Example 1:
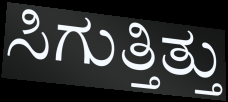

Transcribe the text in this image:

ಸಿಗುತ್ತಿತ್ತು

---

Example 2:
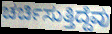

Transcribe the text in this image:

ಚರ್ಚಿಸುತ್ತಿದ್ದೆವು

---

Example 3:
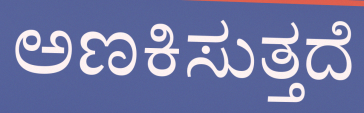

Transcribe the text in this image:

ಅಣಕಿಸುತ್ತದೆ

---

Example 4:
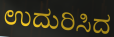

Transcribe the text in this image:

ಉದುರಿಸಿದ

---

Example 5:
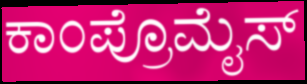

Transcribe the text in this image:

ಕಾಂಪ್ರೊಮೈಸ್